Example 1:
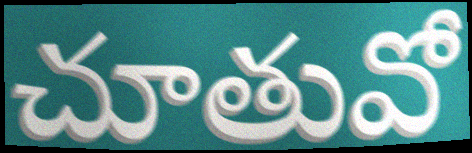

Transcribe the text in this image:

చూతువో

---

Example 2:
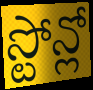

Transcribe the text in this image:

స్టోన్లో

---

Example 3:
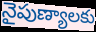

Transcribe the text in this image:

నైపుణ్యాలకు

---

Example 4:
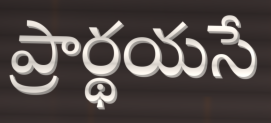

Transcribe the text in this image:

ప్రార్థయసే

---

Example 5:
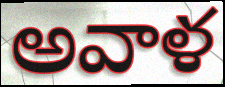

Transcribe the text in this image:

అవాళ